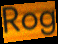
Rog